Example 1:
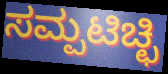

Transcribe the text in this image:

ಸಮ್ಪಟಿಚ್ಛಿ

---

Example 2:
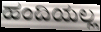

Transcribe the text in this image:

ಹಂದಿಯಲ್ಲ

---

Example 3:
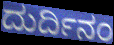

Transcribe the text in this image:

ದುರ್ದಿನಂ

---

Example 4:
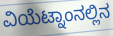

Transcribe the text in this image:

ವಿಯೆಟ್ನಾಂನಲ್ಲಿನ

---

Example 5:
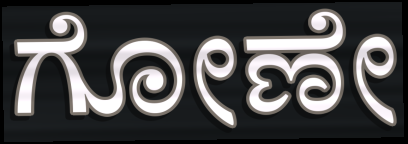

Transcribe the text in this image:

ಗೋಣೇ